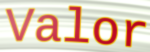
Valor